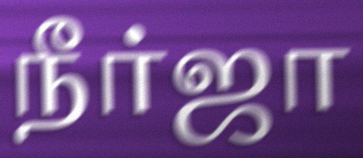
நீர்ஜா